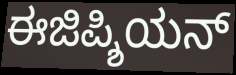
ಈಜಿಪ್ಶಿಯನ್